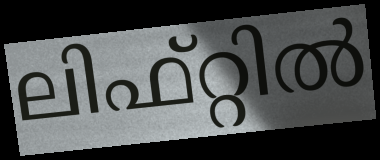
ലിഫ്റ്റിൽ